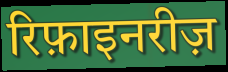
रिफ़ाइनरीज़